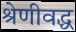
श्रेणीवद्ध